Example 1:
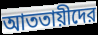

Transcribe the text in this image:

আততায়ীদের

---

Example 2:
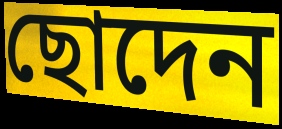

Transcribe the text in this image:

ছোদেন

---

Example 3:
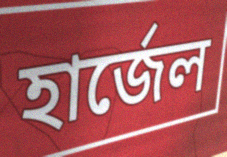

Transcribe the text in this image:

হার্জেল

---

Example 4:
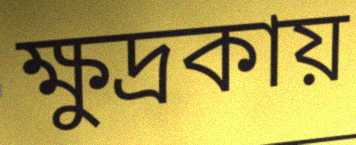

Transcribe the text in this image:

ক্ষুদ্রকায়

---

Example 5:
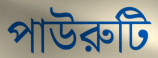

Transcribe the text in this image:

পাউরুটি